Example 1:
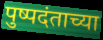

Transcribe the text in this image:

पुष्पदंताच्या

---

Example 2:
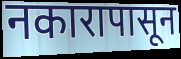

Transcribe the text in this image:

नकारापासून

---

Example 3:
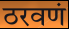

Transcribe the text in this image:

ठरवणं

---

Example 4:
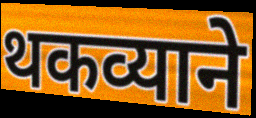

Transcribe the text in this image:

थकव्याने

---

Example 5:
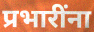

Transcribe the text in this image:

प्रभारींना